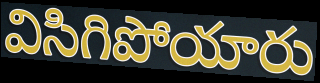
విసిగిపోయారు